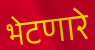
भेटणारे